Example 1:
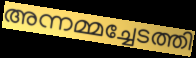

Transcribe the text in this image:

അന്നമ്മച്ചേടത്തി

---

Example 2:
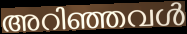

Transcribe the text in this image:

അറിഞ്ഞവൾ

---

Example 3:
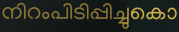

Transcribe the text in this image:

നിറംപിടിപ്പിച്ചുകൊ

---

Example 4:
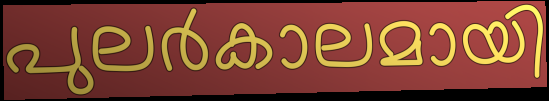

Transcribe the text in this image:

പുലർകാലമായി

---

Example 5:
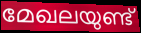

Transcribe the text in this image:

മേഖലയുണ്ട്